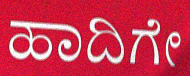
ಹಾದಿಗೇ